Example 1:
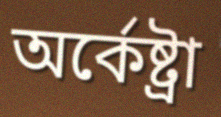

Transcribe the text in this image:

অর্কেষ্ট্রা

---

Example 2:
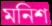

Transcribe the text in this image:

মনিশ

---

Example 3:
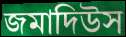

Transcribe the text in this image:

জমাদিউস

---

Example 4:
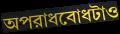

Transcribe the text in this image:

অপরাধবোধটাও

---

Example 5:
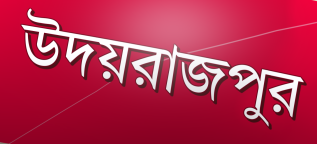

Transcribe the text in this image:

উদয়রাজপুর